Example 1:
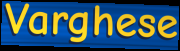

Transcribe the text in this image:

Varghese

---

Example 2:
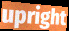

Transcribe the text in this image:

upright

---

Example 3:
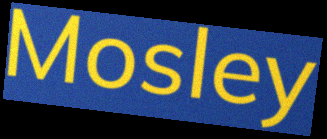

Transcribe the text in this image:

Mosley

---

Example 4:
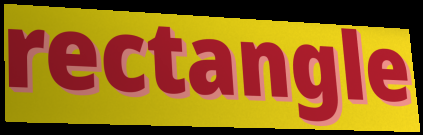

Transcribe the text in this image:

rectangle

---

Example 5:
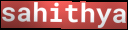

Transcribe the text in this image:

sahithya